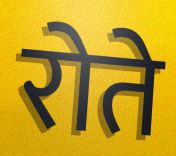
रोते